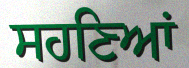
ਸਹਣਿਆਂ